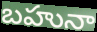
బహునా